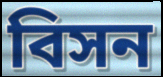
বিসন